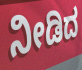
ನೀಡಿದ